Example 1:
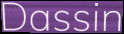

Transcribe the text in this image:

Dassin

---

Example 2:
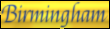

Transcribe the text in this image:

Birmingham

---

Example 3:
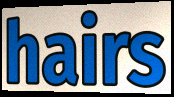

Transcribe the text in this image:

hairs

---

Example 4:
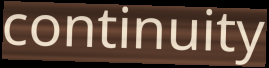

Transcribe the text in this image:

continuity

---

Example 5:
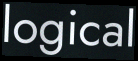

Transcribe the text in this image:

logical